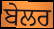
ਬੇਲਰ